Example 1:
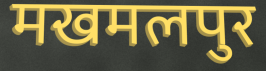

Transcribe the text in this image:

मखमलपुर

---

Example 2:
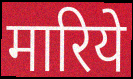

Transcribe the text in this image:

मारिये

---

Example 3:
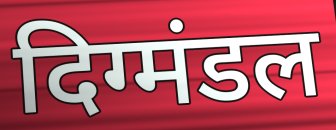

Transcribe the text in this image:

दिग्मंडल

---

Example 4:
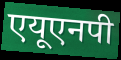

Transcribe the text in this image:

एयूएनपी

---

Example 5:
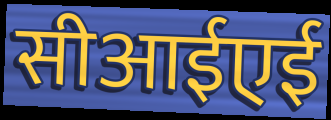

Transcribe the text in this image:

सीआईएई